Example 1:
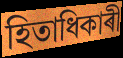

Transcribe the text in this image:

হিতাধিকাৰী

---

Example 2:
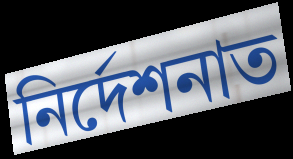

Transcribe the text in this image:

নিৰ্দেশনাত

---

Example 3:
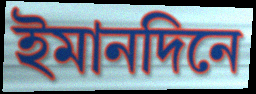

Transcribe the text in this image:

ইমানদিনে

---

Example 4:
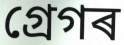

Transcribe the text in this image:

গ্ৰেগৰ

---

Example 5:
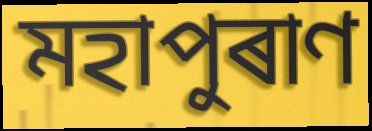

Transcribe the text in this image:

মহাপুৰাণ